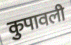
कुपावली